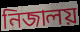
নিজালয়